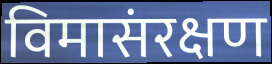
विमासंरक्षण